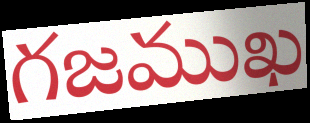
గజముఖ